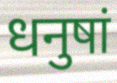
धनुषां